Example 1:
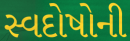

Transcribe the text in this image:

સ્વદોષોની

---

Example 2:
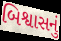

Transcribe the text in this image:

બિશ્વાસનું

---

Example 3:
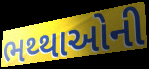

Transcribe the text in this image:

ભથ્થાઓની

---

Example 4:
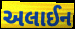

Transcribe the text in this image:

અલાઈન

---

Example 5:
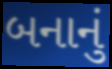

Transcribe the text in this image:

બનાનું